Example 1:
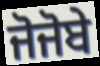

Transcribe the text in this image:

ਜੋਜੋਬੇ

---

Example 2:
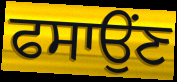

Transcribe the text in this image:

ਫਸਾਉਂਣ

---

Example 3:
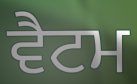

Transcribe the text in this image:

ਵੈਟਮ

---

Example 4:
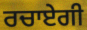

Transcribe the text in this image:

ਰਚਾਏਗੀ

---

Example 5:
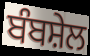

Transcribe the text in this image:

ਬੰਬਸ਼ੇਲ